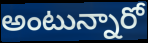
అంటున్నారో